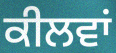
ਕੀਲਵਾਂ